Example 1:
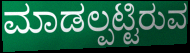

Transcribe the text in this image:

ಮಾಡಲ್ಪಟ್ಟಿರುವ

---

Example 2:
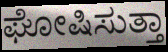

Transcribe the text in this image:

ಘೋಷಿಸುತ್ತಾ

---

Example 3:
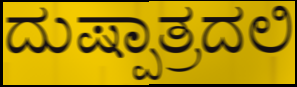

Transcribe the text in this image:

ದುಷ್ಪಾತ್ರದಲಿ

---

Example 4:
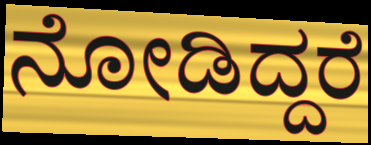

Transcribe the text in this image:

ನೋಡಿದ್ದರೆ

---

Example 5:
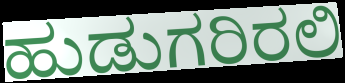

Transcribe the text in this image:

ಹುಡುಗರಿರಲಿ